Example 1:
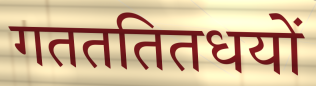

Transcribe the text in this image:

गतततितधयों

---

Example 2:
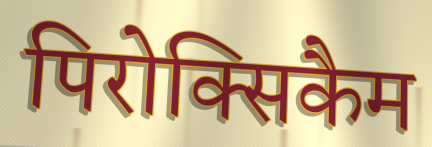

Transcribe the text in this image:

पिरोक्सिकैम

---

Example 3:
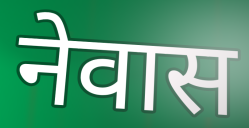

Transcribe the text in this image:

नेवास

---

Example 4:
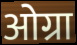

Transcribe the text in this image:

ओग्रा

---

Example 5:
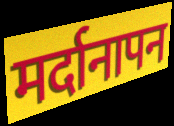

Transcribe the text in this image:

मर्दानापन